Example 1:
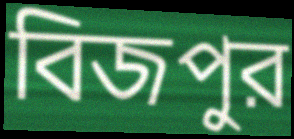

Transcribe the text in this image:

বিজপুর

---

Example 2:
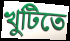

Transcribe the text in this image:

খুটিতে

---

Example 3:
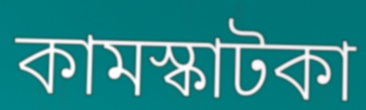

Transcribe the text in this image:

কামস্কাটকা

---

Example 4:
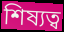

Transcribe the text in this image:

শিষ্যত্ব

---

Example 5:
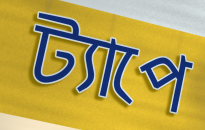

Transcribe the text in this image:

ট্যাপে